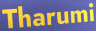
Tharumi